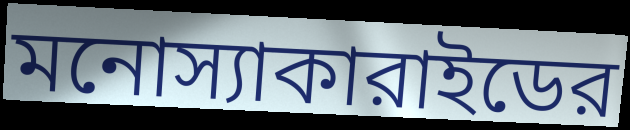
মনোস্যাকারাইডের